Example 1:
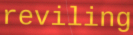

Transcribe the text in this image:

reviling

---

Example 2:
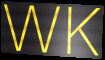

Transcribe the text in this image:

WK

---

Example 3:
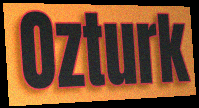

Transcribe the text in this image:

Ozturk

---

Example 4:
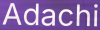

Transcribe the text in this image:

Adachi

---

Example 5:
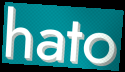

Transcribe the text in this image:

hato